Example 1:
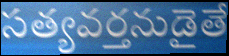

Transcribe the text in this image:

సత్యవర్తనుడైతే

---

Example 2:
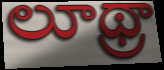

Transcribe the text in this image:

లూథ్రా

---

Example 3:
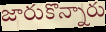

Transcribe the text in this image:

జారుకొన్నారు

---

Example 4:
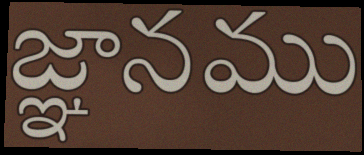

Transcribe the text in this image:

జ్ఞానము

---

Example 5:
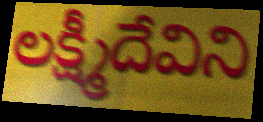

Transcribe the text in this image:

లక్ష్మీదేవిని